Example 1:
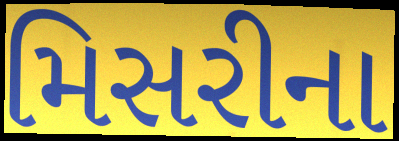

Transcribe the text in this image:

મિસરીના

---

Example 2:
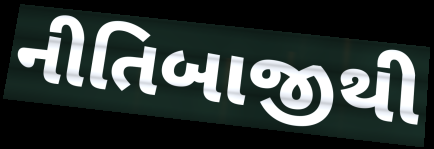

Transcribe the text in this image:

નીતિબાજીથી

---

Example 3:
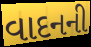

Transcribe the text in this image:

વાદનની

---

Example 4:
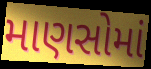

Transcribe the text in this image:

માણસોમાં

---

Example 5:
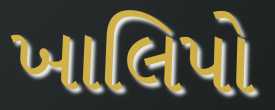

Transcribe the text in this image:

ખાલિપો